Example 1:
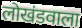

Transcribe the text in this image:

लोखंडवाला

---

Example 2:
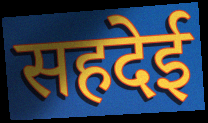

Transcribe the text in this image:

सहदेई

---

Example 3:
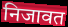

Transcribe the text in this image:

निजावत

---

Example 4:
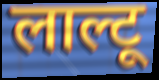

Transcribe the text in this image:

लाल्‍टू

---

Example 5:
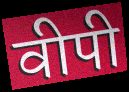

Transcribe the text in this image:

वीपी